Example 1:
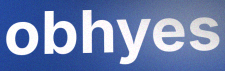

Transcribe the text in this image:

obhyes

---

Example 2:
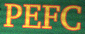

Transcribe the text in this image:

PEFC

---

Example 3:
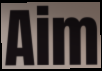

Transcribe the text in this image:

Aim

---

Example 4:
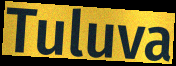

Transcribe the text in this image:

Tuluva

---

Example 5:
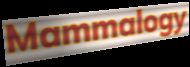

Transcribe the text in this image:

Mammalogy